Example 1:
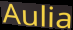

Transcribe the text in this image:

Aulia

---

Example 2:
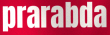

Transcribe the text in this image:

prarabda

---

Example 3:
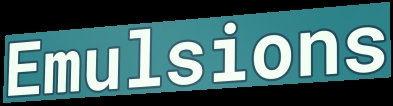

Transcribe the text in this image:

Emulsions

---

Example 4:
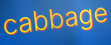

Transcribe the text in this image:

cabbage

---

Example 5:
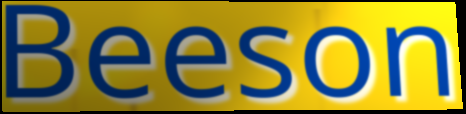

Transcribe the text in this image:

Beeson